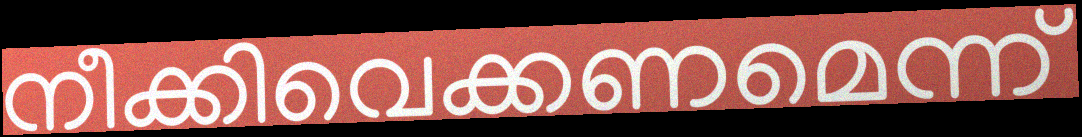
നീക്കിവെക്കണമെന്ന്